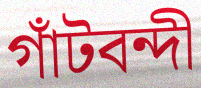
গাঁটবন্দী